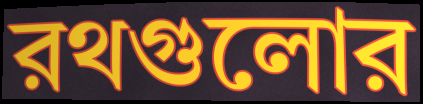
রথগুলোর